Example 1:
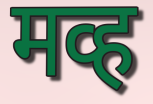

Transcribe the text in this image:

मव्ह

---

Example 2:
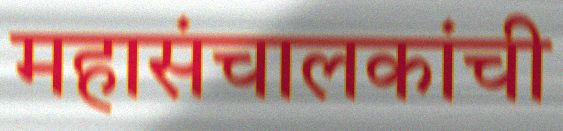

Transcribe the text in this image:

महासंचालकांची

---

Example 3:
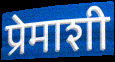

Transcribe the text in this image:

प्रेमाशी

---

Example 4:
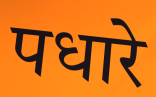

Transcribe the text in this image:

पधारे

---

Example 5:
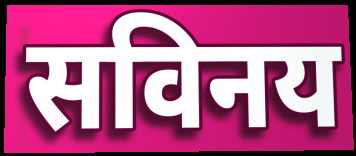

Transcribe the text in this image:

सविनय